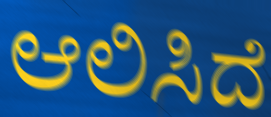
ಆಲಿಸಿದೆ